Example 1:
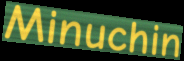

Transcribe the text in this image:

Minuchin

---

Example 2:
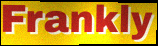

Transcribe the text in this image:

Frankly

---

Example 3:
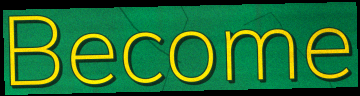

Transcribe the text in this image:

Become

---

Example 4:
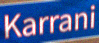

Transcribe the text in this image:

Karrani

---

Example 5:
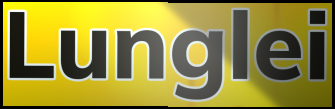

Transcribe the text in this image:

Lunglei